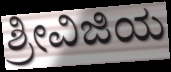
ಶ್ರೀವಿಜಿಯ